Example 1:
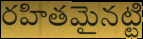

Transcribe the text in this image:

రహితమైనట్టి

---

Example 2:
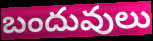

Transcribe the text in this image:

బందువులు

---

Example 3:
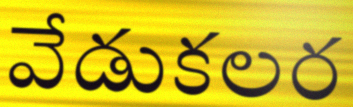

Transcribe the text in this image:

వేడుకలర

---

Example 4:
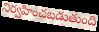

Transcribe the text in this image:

నిర్వహించబడుతుంది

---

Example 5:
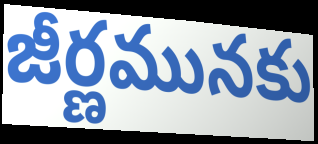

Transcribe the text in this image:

జీర్ణమునకు